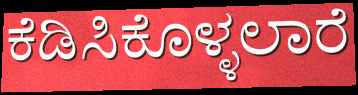
ಕೆಡಿಸಿಕೊಳ್ಳಲಾರೆ